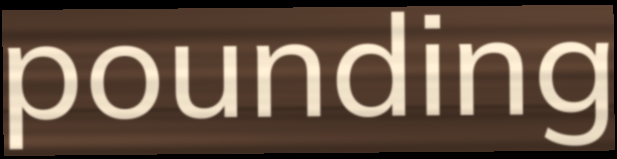
pounding